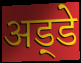
अड्‍डे